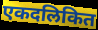
एकदलिकित